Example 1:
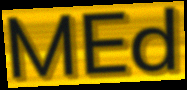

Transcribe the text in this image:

MEd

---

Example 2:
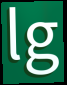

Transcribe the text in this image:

lg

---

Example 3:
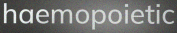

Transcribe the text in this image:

haemopoietic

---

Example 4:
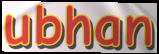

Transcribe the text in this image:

ubhan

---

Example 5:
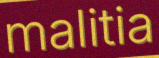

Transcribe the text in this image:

malitia